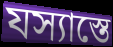
যস্যাস্তে